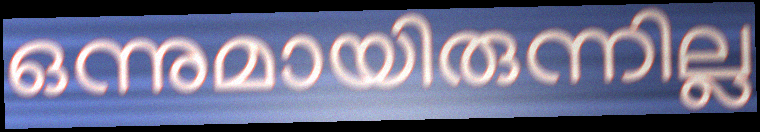
ഒന്നുമായിരുന്നില്ല